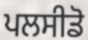
ਪਲਸੀਡੋ